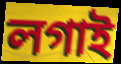
লগাই